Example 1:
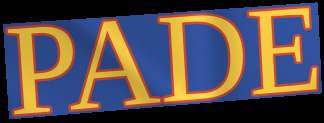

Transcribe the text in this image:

PADE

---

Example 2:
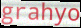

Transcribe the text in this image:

grahyo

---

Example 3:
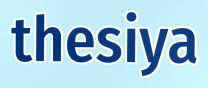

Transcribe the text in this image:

thesiya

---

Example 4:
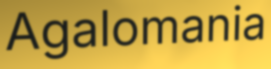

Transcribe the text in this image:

Agalomania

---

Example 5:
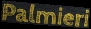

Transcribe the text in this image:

Palmieri